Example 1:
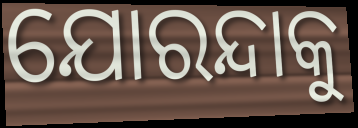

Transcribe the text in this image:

ଯୋରନ୍ଦାକୁ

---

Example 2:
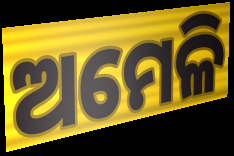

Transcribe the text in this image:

ଅମେଳି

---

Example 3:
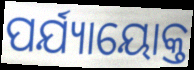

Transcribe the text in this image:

ପର୍ଯ୍ୟାୟୋକ୍ତ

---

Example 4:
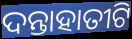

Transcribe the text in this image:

ଦନ୍ତାହାତୀଟି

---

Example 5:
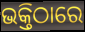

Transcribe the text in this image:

ଭକ୍ତିଠାରେ